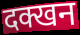
दक्खन